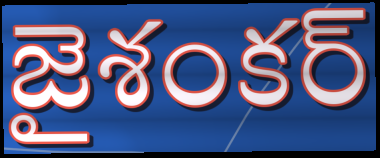
జైశంకర్